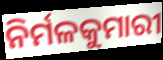
ନିର୍ମଳକୁମାରୀ